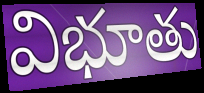
విభూతు